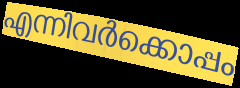
എന്നിവർക്കൊപ്പം